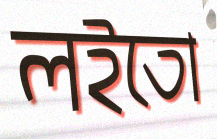
লইতো